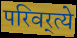
परिवर्त्ये